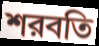
শরবতি